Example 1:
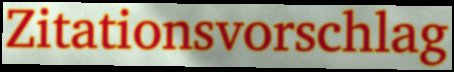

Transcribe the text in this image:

Zitationsvorschlag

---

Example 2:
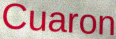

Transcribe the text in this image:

Cuaron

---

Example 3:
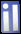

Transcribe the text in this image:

il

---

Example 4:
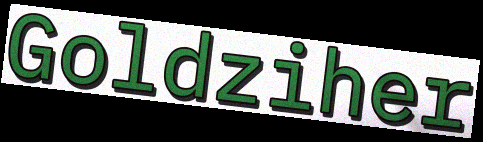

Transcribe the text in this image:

Goldziher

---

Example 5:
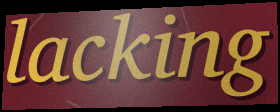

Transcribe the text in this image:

lacking